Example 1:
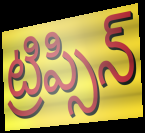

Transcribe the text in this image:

ట్రిప్సిన్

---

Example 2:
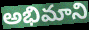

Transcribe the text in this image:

అభిమాని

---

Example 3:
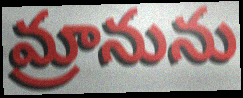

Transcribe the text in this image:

మ్రానును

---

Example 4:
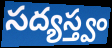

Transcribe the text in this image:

సద్యస్త్వం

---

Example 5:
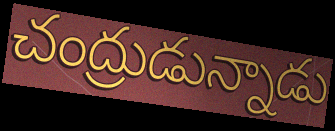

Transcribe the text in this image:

చంద్రుడున్నాడు